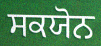
ਸਕਯੋਨ